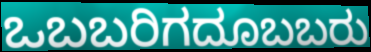
ಒಬಬರಿಗದೂಬಬರು